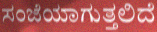
ಸಂಜೆಯಾಗುತ್ತಲಿದೆ